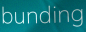
bunding